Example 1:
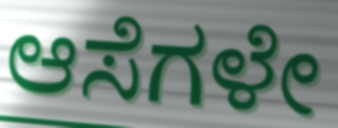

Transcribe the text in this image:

ಆಸೆಗಳೇ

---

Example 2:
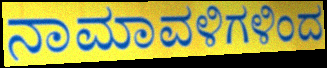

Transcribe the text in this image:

ನಾಮಾವಳಿಗಳಿಂದ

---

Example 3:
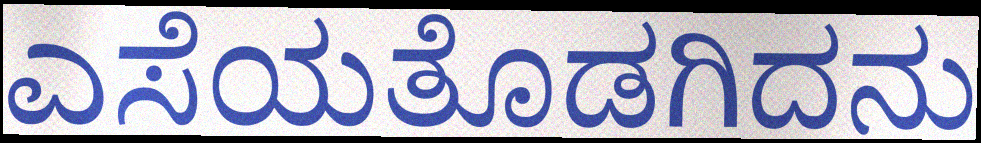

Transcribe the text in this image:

ಎಸೆಯತೊಡಗಿದನು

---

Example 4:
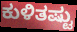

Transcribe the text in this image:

ಕುಳಿತಷ್ಟು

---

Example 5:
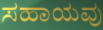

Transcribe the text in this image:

ಸಹಾಯವು